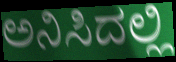
ಅನಿಸಿದಲ್ಲಿ